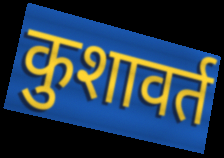
कुशावर्त